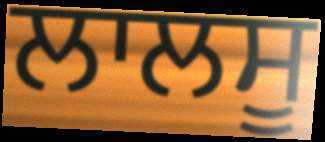
ਲਾਲਸੂ